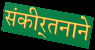
संकीर्तनाने